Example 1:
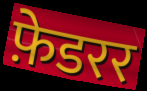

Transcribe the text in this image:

फ़ेडरर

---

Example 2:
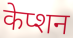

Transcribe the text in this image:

केप्शन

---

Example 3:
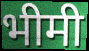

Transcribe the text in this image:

भीमी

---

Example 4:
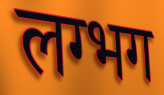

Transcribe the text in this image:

लग्भग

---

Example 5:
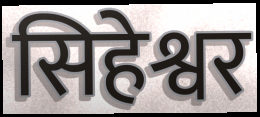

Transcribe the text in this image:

सिहेश्वर